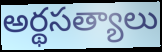
అర్థసత్యాలు